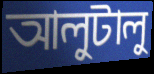
আলুটালু